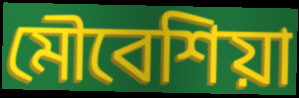
মৌবেশিয়া